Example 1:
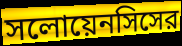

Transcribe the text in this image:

সলোয়েনসিসের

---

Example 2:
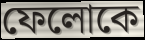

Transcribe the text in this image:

ফেলোকে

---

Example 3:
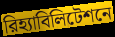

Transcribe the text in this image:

রিহ্যাবিলিটেশনে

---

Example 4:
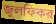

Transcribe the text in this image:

জুলফিকর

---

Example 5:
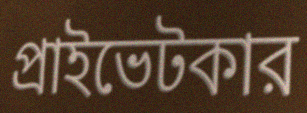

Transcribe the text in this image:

প্রাইভেটকার